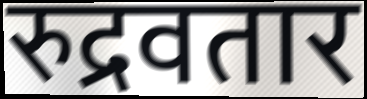
रुद्रवतार